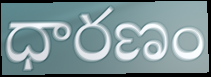
ధారణం